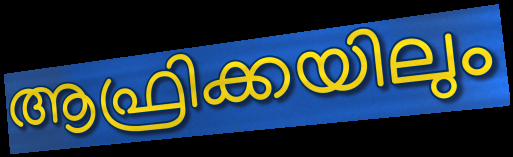
ആഫ്രിക്കയിലും